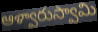
ఆళ్వారుస్వామి